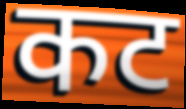
कट